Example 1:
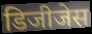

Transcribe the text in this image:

डिजीजेस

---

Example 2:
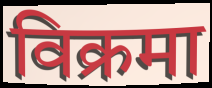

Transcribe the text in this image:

विक्रमा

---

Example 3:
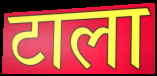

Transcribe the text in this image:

टाला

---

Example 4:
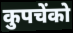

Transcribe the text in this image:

कुपचेंको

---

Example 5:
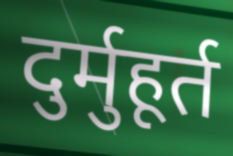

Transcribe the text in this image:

दुर्मुहूर्त